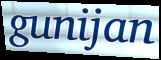
gunijan